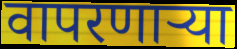
वापरणार्‍या